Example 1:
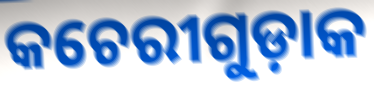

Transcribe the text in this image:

କଚେରୀଗୁଡ଼ାକ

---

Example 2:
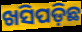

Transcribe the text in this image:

ଖସିପଡ଼ିଛ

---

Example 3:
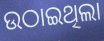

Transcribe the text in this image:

ଉଠାଇଥିଲା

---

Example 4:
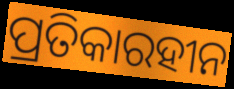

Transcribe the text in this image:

ପ୍ରତିକାରହୀନ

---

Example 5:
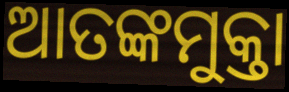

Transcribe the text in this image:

ଆତଙ୍କମୁକ୍ତା